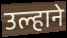
उल्हाने